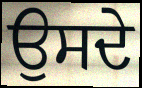
ਉਸਦੇ